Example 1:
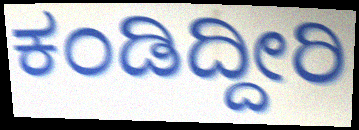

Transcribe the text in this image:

ಕಂಡಿದ್ದೀರಿ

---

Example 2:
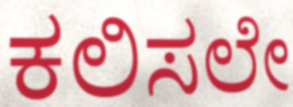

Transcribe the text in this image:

ಕಲಿಸಲೇ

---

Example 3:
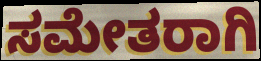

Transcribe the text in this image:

ಸಮೇತರಾಗಿ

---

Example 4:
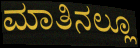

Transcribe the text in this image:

ಮಾತಿನಲ್ಲೂ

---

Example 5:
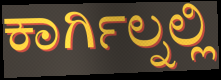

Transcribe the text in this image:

ಕಾರ್ಗಿಲ್ನಲ್ಲಿ